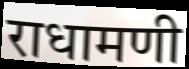
राधामणी